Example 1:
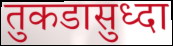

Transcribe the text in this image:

तुकडासुध्दा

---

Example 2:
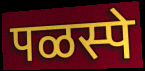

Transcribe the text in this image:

पळस्पे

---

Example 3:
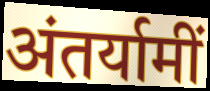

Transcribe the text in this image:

अंतर्यामीं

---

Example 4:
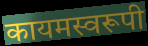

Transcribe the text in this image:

कायमस्वरूपी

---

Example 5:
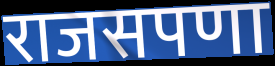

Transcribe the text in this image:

राजसपणा